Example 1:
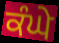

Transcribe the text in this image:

ਕੰਘੇ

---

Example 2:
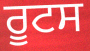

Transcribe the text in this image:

ਰੂਟਸ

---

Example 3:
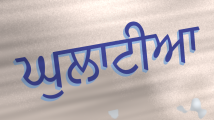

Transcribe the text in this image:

ਘੁਲਾਟੀਆ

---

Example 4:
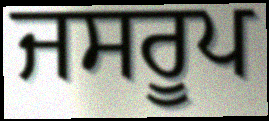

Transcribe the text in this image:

ਜਸਰੂਪ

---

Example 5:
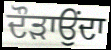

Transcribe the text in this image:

ਦੌੜਾਉਂਦਾ